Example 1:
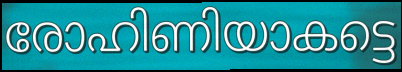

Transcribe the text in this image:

രോഹിണിയാകട്ടെ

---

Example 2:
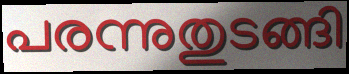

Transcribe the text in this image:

പരന്നുതുടങ്ങി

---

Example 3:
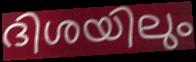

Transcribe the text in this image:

ദിശയിലും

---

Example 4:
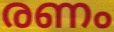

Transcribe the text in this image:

രണം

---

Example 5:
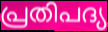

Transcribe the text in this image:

പ്രതിപദ്യ